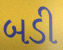
બડી